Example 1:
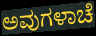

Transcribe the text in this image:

ಅವುಗಳಾಚೆ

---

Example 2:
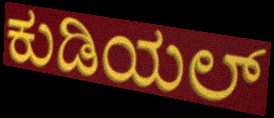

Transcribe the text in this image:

ಕುಡಿಯಲ್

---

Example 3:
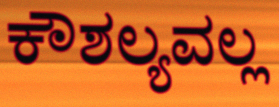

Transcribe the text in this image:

ಕೌಶಲ್ಯವಲ್ಲ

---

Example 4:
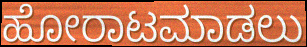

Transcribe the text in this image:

ಹೋರಾಟಮಾಡಲು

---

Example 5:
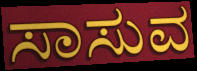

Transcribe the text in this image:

ಸಾಸುವ